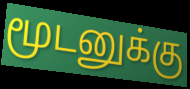
மூடனுக்கு